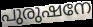
പുരുഷനേ